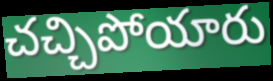
చచ్చిపోయారు